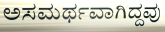
ಅಸಮರ್ಥವಾಗಿದ್ದವು